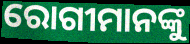
ରୋଗୀମାନଙ୍କୁ